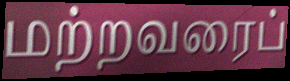
மற்றவரைப்